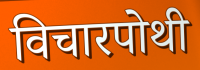
विचारपोथी